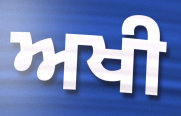
ਅਖੀ